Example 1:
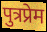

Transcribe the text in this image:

पुत्रप्रेम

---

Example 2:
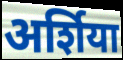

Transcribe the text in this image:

अर्शिया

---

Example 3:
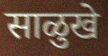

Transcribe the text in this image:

साळुखे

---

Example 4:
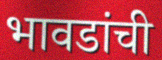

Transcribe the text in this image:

भावडांची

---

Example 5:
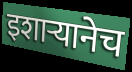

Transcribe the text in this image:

इशाऱ्यानेच